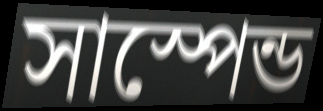
সাস্পেন্ড